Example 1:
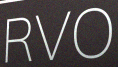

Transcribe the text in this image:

RVO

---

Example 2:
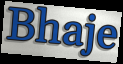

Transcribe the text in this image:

Bhaje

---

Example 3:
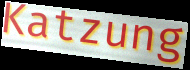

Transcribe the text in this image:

Katzung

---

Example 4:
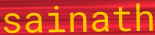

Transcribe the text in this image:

sainath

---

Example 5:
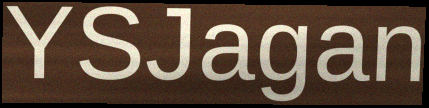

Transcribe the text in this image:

YSJagan